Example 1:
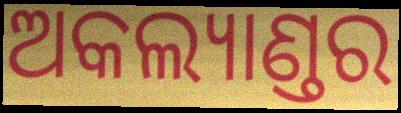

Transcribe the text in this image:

ଅକଲ୍ୟାଣ୍ଡର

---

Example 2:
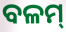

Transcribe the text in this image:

ବଳମ୍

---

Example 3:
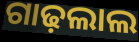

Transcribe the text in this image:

ଗାଢ଼ଲାଲ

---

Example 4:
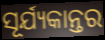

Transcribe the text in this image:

ସୂର୍ଯ୍ୟକାନ୍ତର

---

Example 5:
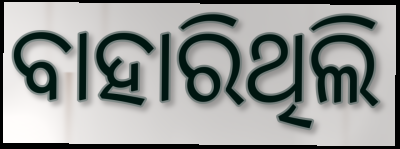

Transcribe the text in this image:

ବାହାରିଥିଲି